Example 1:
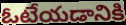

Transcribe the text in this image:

ఓటేయడానికి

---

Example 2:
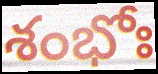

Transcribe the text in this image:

శంభోః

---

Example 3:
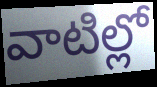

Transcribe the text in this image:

వాటిల్లో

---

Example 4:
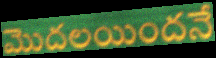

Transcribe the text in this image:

మొదలయిందనే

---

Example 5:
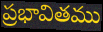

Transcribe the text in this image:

ప్రభావితము